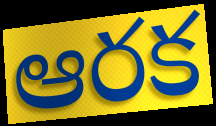
ఆరక